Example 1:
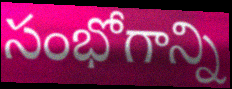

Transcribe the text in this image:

సంభోగాన్ని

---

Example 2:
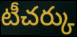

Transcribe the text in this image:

టీచర్కు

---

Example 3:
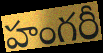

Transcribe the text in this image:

హంగరీ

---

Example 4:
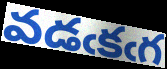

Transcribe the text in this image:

వడఁకఁగ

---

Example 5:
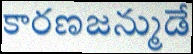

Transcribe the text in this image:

కారణజన్ముడే